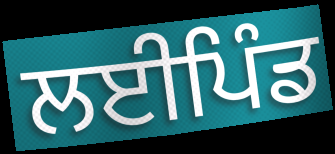
ਲਈਪਿੰਡ